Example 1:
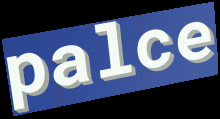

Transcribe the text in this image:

palce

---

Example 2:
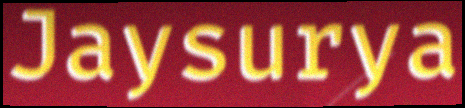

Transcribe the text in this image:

Jaysurya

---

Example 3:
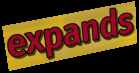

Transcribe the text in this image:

expands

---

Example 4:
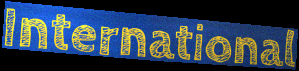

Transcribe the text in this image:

International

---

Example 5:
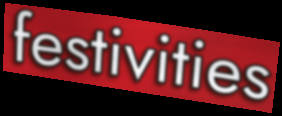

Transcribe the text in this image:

festivities